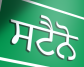
ਸਟੈਨੋ